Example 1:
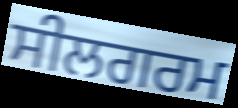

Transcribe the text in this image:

ਸੀਲਗਰਮ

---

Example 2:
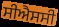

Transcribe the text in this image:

ਸੀਐਸਸੀ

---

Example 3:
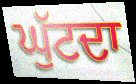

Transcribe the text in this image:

ਘੁੱਟਦਾ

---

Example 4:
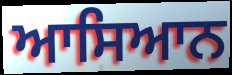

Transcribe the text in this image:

ਆਸਿਆਨ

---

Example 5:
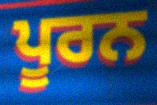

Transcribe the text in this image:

ਪੂਰਨ